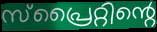
സ്പ്രൈറ്റിന്റെ